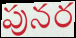
పునర